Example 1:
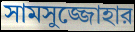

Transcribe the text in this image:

সামসুজ্জোহার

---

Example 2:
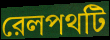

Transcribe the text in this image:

রেলপথটি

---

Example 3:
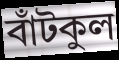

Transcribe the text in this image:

বাঁটকুল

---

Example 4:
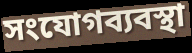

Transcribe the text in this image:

সংযোগব্যবস্থা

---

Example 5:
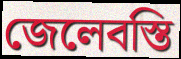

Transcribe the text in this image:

জেলেবস্তি